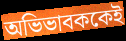
অভিভাবককেই